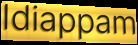
Idiappam